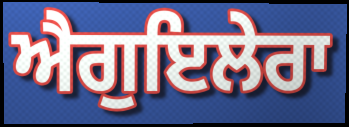
ਐਗੁਇਲੇਰਾ